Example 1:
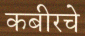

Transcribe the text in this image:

कबीरचे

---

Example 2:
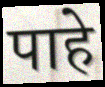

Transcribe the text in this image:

पाहे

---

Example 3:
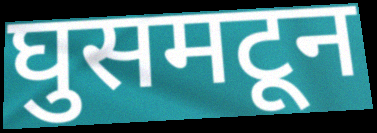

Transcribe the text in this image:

घुसमटून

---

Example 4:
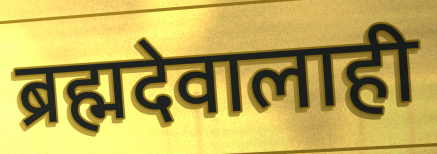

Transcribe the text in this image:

ब्रह्मदेवालाही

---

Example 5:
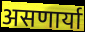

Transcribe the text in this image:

असणार्या